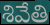
శివేతి